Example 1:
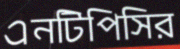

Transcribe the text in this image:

এনটিপিসির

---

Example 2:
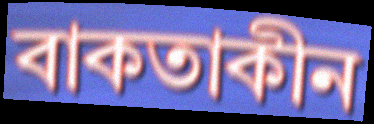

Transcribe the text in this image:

বাকতাকীন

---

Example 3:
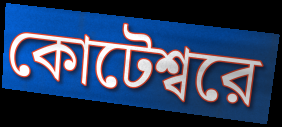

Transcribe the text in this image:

কোটেশ্বরে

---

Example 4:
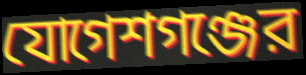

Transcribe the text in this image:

যোগেশগঞ্জের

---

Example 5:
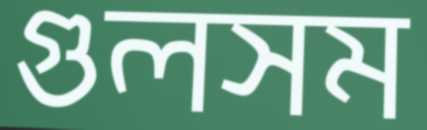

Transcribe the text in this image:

গুলসম